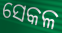
ସେକଳ